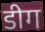
डीग